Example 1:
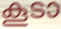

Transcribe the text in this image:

കൂടാ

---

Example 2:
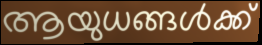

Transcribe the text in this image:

ആയുധങ്ങൾക്ക്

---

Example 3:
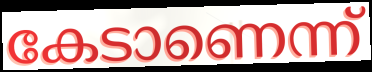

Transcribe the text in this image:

കേടാണെന്ന്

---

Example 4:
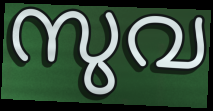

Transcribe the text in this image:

സുവ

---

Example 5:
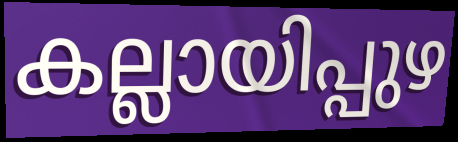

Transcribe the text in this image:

കല്ലായിപ്പുഴ